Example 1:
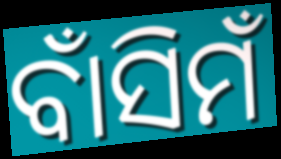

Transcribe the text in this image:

ବାଁସିମଁ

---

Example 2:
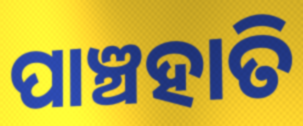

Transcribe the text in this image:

ପାଞ୍ଚହାତି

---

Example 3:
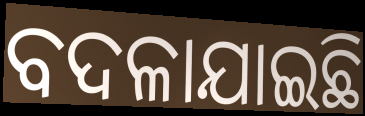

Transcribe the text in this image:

ବଦଳାଯାଇଛି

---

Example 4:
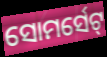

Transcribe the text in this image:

ସୋମର୍ସେଟ୍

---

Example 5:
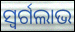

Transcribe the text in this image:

ସ୍ୱର୍ଗଲାଭ